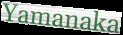
Yamanaka